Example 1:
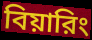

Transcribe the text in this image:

বিয়ারিং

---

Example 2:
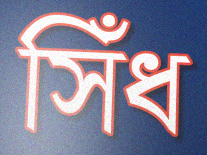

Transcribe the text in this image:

সিঁধ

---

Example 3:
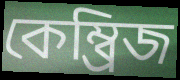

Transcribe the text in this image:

কেম্ব্রিজ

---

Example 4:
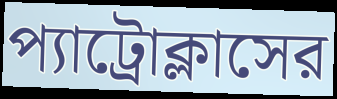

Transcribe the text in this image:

প্যাট্রোক্লাসের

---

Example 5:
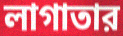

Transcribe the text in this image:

লাগাতার